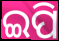
ଇପି